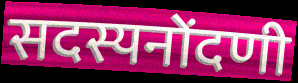
सदस्यनोंदणी